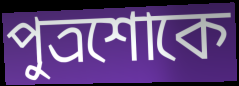
পুত্রশোকে